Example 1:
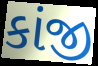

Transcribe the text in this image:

કાંજી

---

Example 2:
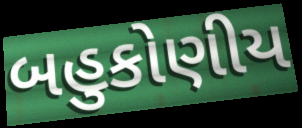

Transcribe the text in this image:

બહુકોણીય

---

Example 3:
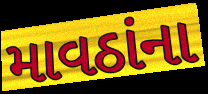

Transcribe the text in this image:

માવઠાંના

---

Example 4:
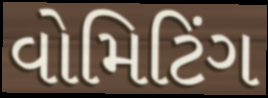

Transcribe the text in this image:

વોમિટિંગ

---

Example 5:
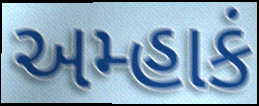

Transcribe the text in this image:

અમ્હાકં